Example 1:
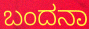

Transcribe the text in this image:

ಬಂದನಾ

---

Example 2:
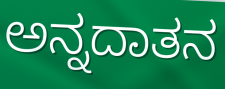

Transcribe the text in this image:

ಅನ್ನದಾತನ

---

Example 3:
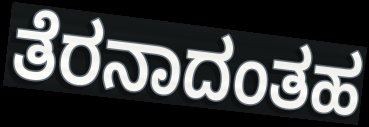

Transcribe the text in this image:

ತೆರನಾದಂತಹ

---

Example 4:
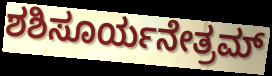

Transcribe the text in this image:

ಶಶಿಸೂರ್ಯನೇತ್ರಮ್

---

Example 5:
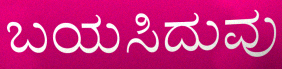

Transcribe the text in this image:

ಬಯಸಿದುವು